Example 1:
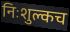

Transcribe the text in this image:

निःशुल्कच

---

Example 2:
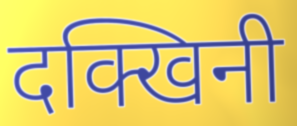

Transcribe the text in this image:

दक्खिनी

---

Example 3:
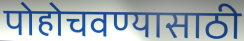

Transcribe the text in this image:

पोहोचवण्यासाठी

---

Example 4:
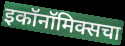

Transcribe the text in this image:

इकॉनॉमिक्सचा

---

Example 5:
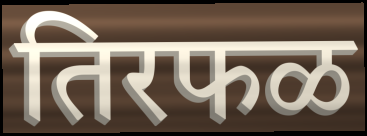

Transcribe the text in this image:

तिरफळ